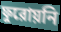
ফুরোয়নি